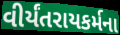
વીર્યંતરાયકર્મના